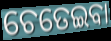
ଚେତେଇବା